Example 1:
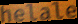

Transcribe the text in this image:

helale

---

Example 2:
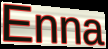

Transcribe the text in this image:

Enna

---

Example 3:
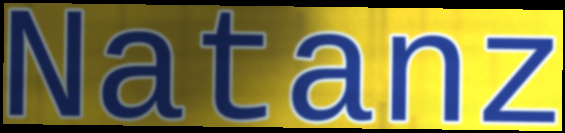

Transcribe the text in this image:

Natanz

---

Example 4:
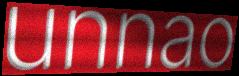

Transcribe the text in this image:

unnao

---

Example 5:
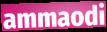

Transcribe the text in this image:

ammaodi